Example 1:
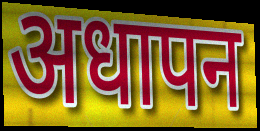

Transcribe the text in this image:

अधापन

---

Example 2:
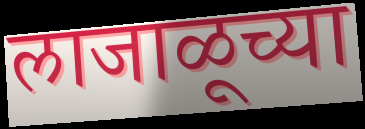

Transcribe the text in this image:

लाजाळूच्या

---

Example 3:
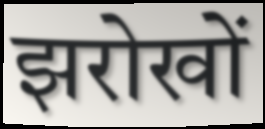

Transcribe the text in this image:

झरोखों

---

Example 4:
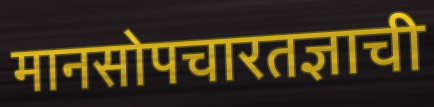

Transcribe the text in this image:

मानसोपचारतज्ञाची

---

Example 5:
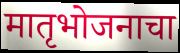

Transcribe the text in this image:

मातृभोजनाचा